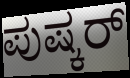
ಪುಷ್ಕರ್